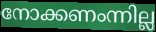
നോക്കണംന്നില്ല